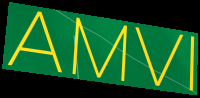
AMVI